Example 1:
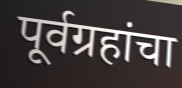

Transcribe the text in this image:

पूर्वग्रहांचा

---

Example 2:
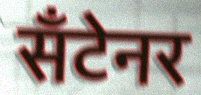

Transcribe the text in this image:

सँटेनर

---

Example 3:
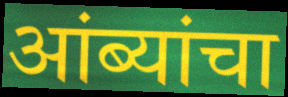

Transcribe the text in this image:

आंब्यांचा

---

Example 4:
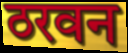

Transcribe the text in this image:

ठरवन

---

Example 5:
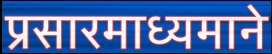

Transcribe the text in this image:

प्रसारमाध्यमाने